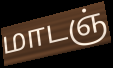
மாடஞ்